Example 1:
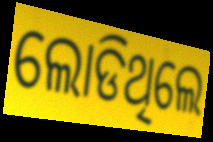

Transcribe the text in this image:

ଲୋଡିଥିଲେ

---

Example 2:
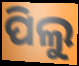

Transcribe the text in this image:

ପିଲୁ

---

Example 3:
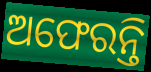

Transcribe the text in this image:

ଅଫେରନ୍ତି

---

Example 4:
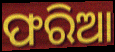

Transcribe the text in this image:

ଫରିଆ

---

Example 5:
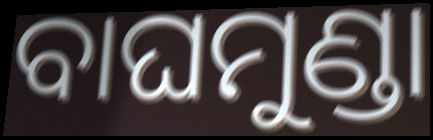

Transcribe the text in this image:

ବାଘମୁଣ୍ଡା